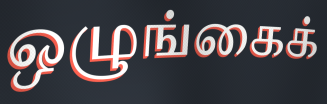
ஒழுங்கைக்